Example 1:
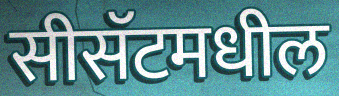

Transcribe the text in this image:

सीसॅटमधील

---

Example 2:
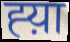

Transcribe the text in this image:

ह्य़ा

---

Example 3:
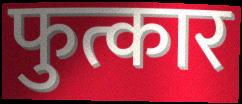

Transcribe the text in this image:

फुत्कार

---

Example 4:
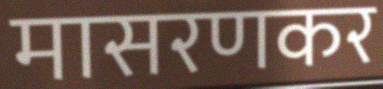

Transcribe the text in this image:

मासरणकर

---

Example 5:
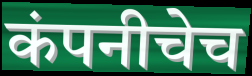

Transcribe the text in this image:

कंपनीचेच